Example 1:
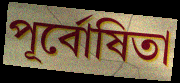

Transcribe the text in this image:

পূর্বোষিতা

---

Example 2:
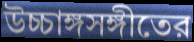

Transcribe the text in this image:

উচ্চাঙ্গসঙ্গীতের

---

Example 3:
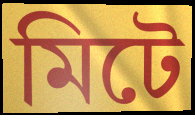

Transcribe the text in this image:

মিটে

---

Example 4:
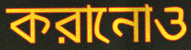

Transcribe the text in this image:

করানোও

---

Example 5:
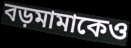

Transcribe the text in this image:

বড়মামাকেও